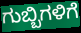
ಗುಬ್ಬಿಗಳಿಗೆ